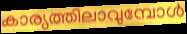
കാര്യത്തിലാവുമ്പോൾ